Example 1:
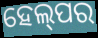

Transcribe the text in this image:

ହେଲ୍‌ପର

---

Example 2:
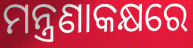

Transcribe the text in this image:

ମନ୍ତ୍ରଣାକକ୍ଷରେ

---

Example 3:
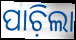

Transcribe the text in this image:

ପାଚ଼ିଲା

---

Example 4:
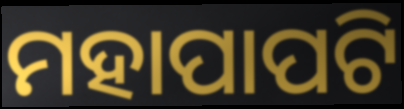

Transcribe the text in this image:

ମହାପାପଟି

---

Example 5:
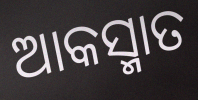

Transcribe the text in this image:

ଆକସ୍ମାତ